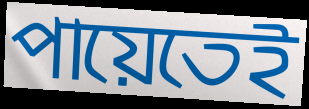
পায়েতেই